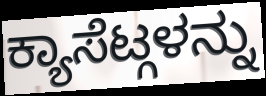
ಕ್ಯಾಸೆಟ್ಗಳನ್ನು